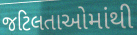
જટિલતાઓમાંથી